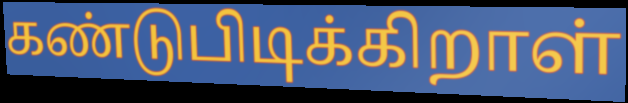
கண்டுபிடிக்கிறாள்